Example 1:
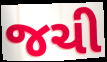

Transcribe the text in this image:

જચી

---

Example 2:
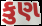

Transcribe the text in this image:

કુણ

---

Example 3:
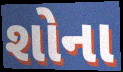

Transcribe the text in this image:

શોના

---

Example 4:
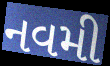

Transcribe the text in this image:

નવમી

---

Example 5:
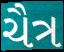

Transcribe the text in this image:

ચૈત્ર